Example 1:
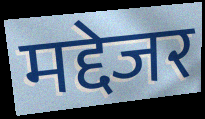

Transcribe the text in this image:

मद्देजर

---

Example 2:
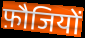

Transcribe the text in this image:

फ़ौजियों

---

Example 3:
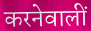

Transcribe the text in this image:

करनेवालीं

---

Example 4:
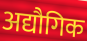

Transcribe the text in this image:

अद्यौगिक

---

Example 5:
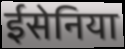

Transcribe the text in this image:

ईसेनिया